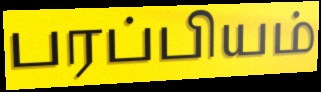
பரப்பியம்